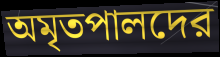
অমৃতপালদের